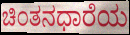
ಚಿಂತನಧಾರೆಯ